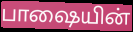
பாஷையின்